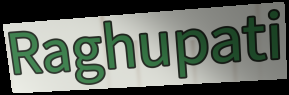
Raghupati